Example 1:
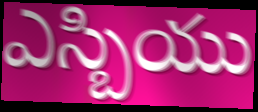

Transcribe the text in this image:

ఎస్బియు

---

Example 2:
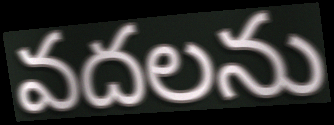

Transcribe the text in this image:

వదలను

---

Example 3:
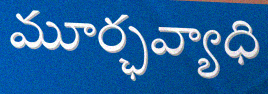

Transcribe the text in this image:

మూర్ఛవ్యాధి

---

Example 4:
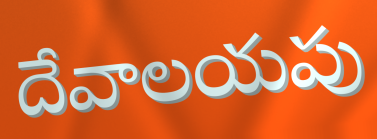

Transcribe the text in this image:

దేవాలయపు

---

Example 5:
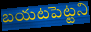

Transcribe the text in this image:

బయటపెట్టని